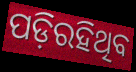
ପଡ଼ିରହିଥିବ